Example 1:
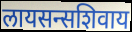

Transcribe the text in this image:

लायसन्सशिवाय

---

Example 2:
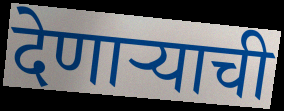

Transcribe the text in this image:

देणाऱ्याची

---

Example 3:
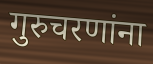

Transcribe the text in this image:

गुरुचरणांना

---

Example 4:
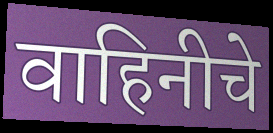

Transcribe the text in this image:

वाहिनीचे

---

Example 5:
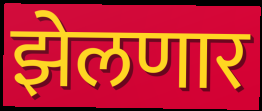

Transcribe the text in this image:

झेलणार